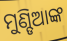
ମୁଣ୍ଡିଆଙ୍କ